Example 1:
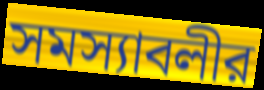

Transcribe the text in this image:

সমস্যাবলীর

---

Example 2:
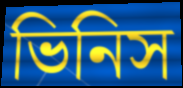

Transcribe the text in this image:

ভিনিস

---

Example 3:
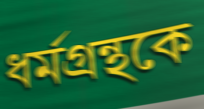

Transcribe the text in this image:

ধর্মগ্রন্থকে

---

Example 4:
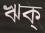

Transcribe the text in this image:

ঋক্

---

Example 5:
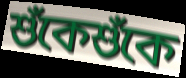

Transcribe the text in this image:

শুঁকেশুঁকে